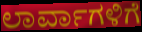
ಲಾರ್ವಾಗಳಿಗೆ